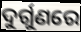
ଦୁର୍ଗୁଣରେ